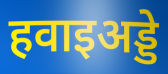
हवाइअड्डे